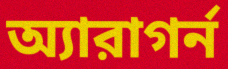
অ্যারাগর্ন